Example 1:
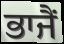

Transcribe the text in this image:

ਭਾਜੈਂ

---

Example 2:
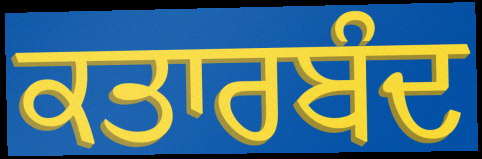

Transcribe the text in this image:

ਕਤਾਰਬੰਦ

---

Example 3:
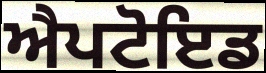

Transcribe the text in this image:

ਐਪਟੋਇਡ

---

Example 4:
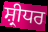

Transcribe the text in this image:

ਸ਼੍ਰੀਧਰ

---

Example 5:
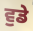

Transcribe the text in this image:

ਵੁਡੇ